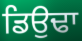
ਡਿਉਢਾ